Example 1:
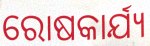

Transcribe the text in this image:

ରୋଷକାର୍ଯ୍ୟ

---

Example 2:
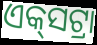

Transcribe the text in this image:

ଏକ୍‍ସଟ୍ରା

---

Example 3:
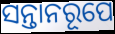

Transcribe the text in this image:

ସନ୍ତାନରୂପେ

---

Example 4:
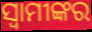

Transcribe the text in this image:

ସ୍ୱାମୀଙ୍କର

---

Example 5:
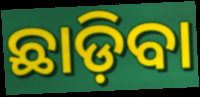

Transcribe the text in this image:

ଛାଡ଼ିବା